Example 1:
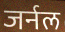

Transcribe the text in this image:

जर्नल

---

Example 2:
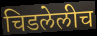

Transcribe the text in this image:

चिडलेलीच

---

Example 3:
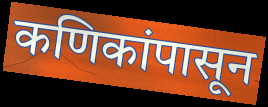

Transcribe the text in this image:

कणिकांपासून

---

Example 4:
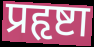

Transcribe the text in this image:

प्रहृष्टा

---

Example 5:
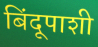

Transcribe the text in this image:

बिंदूपाशी